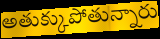
అతుక్కుపోతున్నారు